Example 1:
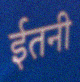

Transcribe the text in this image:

ईतनी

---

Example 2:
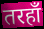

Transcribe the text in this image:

तरहाँ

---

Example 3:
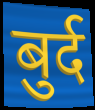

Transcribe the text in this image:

बुर्द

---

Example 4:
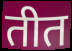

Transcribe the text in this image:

तीत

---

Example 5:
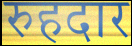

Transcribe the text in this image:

रुहदार